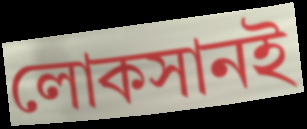
লোকসানই